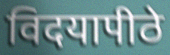
विदयापीठे